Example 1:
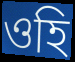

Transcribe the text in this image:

ওহি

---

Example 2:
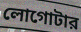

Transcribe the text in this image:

লোগোটার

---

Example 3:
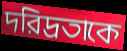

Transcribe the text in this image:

দরিদ্রতাকে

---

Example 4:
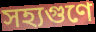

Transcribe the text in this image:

সহ্যগুণে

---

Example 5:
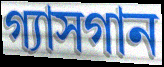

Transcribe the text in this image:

গ্যাসগান